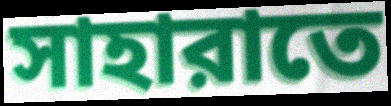
সাহারাতে